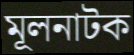
মূলনাটক